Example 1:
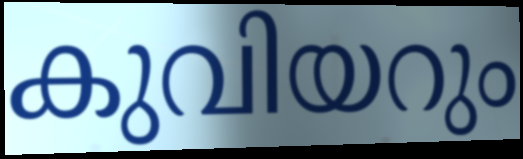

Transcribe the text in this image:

കുവിയറും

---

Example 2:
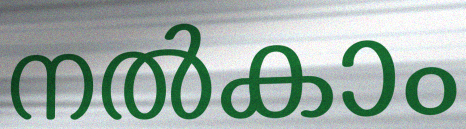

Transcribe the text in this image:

നൽകാം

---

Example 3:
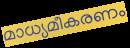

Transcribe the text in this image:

മാധ്യമീകരണം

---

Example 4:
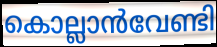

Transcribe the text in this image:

കൊല്ലാൻവേണ്ടി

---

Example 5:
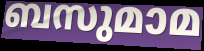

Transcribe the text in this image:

ബസുമാമ